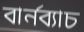
বার্নব্যাচ